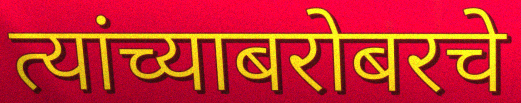
त्यांच्याबरोबरचे